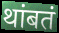
थांबतं